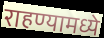
राहण्यामध्ये